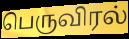
பெருவிரல்